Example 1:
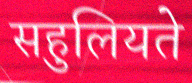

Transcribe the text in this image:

सहुलियते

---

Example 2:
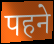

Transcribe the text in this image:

पहने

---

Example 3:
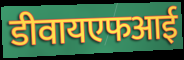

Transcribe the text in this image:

डीवायएफआई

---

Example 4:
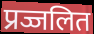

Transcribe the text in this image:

प्रज्जलित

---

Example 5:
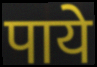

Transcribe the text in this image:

पाये